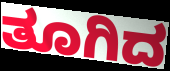
ತೂಗಿದ